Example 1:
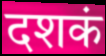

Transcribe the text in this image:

दशकं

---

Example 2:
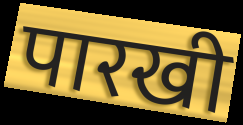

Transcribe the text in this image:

पारखी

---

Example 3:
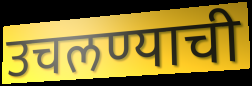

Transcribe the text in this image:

उचलण्याची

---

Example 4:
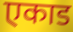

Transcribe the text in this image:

एकाड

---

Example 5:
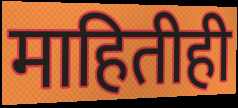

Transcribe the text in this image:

माहितीही